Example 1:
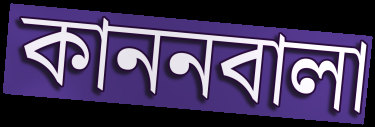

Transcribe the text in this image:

কাননবালা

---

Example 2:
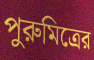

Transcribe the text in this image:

পুরুমিত্রের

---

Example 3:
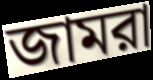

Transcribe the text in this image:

জামরা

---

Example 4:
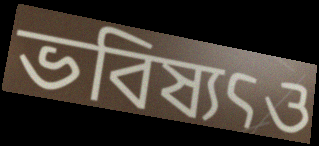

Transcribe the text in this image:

ভবিষ্যৎও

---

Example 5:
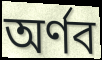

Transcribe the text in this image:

অর্ণব